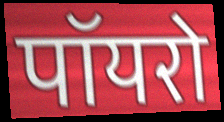
पॉयरो